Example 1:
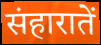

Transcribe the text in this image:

संहारातें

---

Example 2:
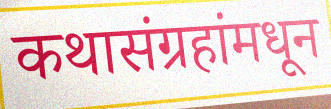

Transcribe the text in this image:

कथासंग्रहांमधून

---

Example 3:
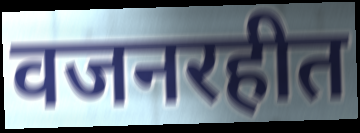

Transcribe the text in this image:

वजनरहीत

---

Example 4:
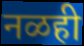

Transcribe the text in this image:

नळही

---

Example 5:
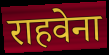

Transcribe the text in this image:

राहवेना